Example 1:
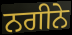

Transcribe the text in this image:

ਨਗੀਨੇ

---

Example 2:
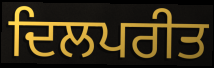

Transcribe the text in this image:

ਦਿਲਪਰੀਤ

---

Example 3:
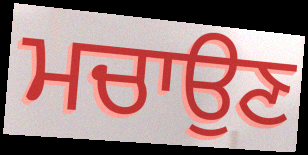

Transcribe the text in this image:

ਮਚਾਉਣ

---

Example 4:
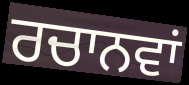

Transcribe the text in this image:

ਰਚਾਨਵਾਂ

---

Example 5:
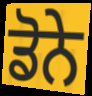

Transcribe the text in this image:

ਡੋਨੇ